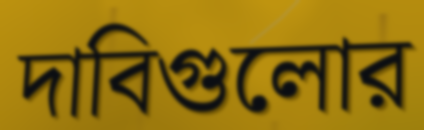
দাবিগুলোর